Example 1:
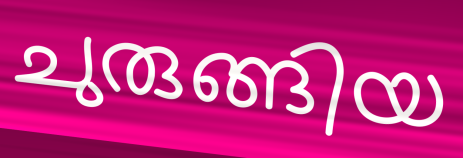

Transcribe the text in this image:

ചുരുങ്ങിയ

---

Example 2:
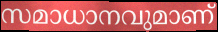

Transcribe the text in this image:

സമാധാനവുമാണ്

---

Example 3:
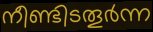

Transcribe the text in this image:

നീണ്ടിടതൂർന്ന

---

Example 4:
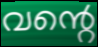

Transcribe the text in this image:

വന്റെ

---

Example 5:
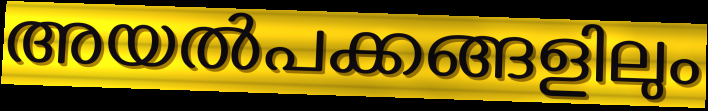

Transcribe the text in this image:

അയൽപക്കങ്ങളിലും